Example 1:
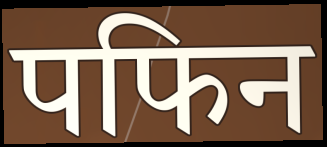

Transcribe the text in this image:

पफिन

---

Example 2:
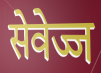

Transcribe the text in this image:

सेवेज्ज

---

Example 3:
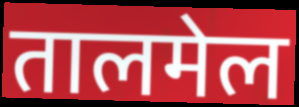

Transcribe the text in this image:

तालमेल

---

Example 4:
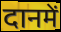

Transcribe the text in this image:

दानमें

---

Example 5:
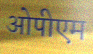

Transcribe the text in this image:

ओपीएम